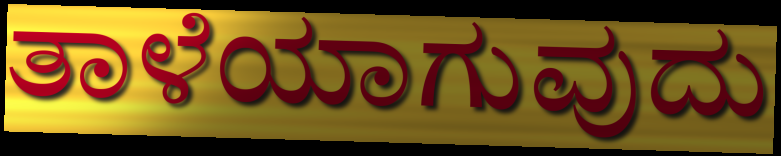
ತಾಳೆಯಾಗುವುದು